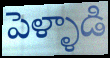
పెళ్ళాడి